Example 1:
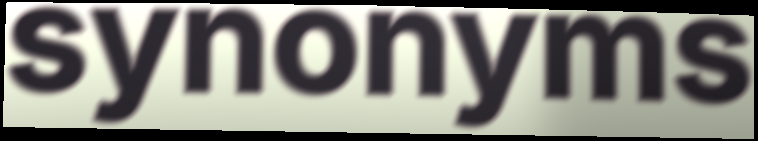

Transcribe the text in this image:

synonyms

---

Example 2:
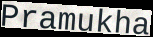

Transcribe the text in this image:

Pramukha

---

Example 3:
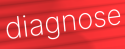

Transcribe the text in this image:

diagnose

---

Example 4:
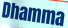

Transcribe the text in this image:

Dhamma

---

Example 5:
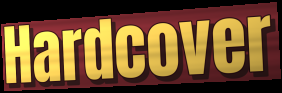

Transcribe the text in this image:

Hardcover